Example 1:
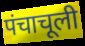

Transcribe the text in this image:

पंचाचूली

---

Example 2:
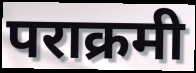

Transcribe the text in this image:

पराक्रमी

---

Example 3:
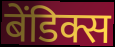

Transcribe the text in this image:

बेंडिक्स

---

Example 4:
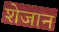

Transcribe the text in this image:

शेजान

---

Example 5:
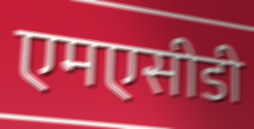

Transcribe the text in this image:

एमएसीडी